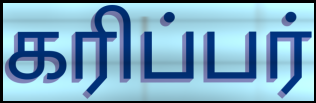
கரிப்பர்